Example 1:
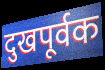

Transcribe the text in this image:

दुखपूर्वक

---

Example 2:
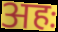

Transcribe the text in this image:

अहः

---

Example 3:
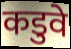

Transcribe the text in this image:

कडुवे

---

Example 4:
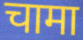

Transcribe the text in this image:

चामा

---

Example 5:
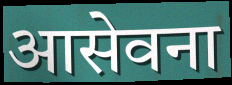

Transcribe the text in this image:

आसेवना